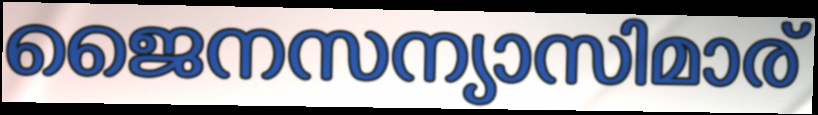
ജൈനസന്യാസിമാര്